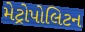
મેટ્રોપોલિટન